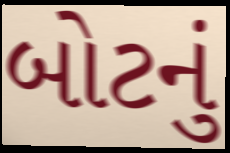
બોટનું